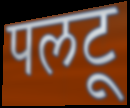
पलटू